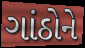
ગાંઠોને